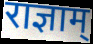
राज्ञाम्